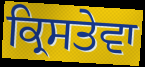
ਕ੍ਰਿਸਤੇਵਾ